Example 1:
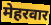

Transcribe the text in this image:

मेहरवार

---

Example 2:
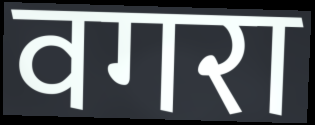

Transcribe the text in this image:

वगरा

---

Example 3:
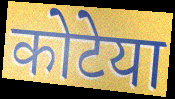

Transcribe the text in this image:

कोटेया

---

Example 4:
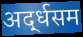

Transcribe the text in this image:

अर्द्धसम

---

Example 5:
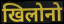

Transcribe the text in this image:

खिलोनो